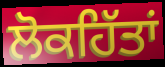
ਲੋਕਹਿੱਤਾਂ